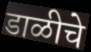
डाळीचे